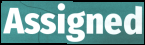
Assigned